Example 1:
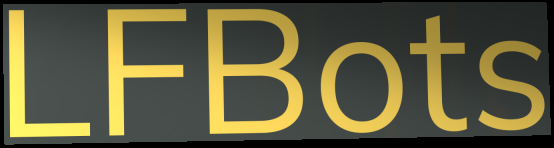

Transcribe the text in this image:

LFBots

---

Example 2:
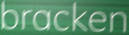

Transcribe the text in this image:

bracken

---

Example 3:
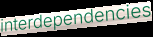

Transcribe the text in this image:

interdependencies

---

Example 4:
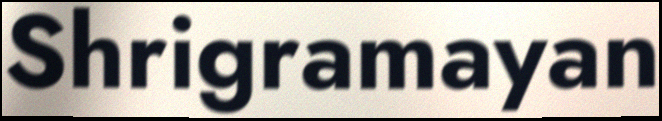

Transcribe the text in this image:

Shrigramayan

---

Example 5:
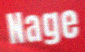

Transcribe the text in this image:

Nage